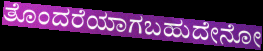
ತೊಂದರೆಯಾಗಬಹುದೇನೋ